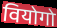
वियोगो